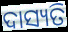
ଦାସ୍ୟତି